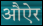
औऐर